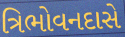
ત્રિભોવનદાસે